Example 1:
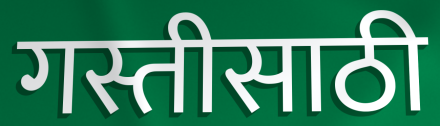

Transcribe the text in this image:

गस्तीसाठी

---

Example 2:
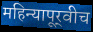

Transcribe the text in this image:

महिन्यापूर्वीच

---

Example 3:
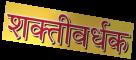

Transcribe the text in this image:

शक्तीवर्धक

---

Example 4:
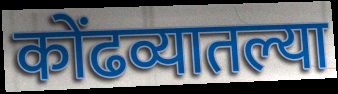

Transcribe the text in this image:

कोंढव्यातल्या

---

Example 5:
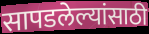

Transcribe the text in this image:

सापडलेल्यांसाठी